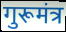
गुरूमंत्र